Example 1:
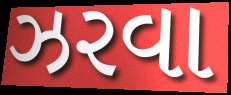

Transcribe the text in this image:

ઝરવા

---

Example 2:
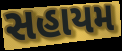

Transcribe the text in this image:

સહાયમ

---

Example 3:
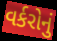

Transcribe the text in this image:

વર્કરોનું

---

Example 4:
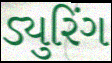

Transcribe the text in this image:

ડ્યુરિંગ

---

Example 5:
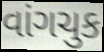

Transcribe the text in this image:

વાંગચુક